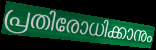
പ്രതിരോധിക്കാനും